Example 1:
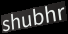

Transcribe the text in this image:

shubhr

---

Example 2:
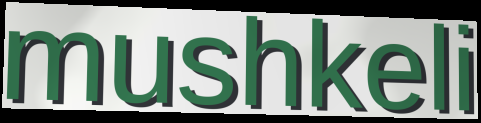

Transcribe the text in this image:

mushkeli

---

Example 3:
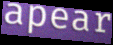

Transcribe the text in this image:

apear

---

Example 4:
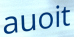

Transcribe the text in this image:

auoit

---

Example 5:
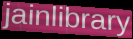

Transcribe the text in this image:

jainlibrary